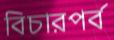
বিচারপর্ব